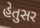
હેતુસર